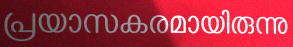
പ്രയാസകരമായിരുന്നു